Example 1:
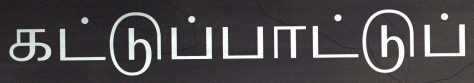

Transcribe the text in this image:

கட்டுப்பாட்டுப்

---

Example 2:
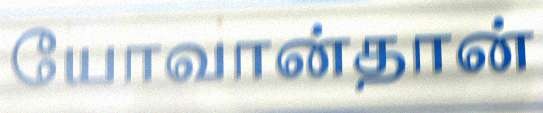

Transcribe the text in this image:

யோவான்தான்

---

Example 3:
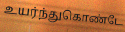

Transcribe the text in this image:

உயர்ந்துகொண்டே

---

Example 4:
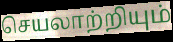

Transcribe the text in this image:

செயலாற்றியும்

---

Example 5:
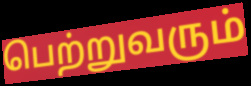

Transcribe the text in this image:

பெற்றுவரும்